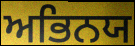
ਅਭਿਨਯ